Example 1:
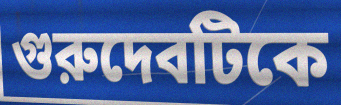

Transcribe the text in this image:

গুরুদেবটিকে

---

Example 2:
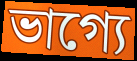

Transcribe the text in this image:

ভাগ্যে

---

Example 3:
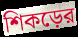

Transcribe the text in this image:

শিকড়ের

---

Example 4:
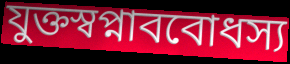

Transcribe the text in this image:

যুক্তস্বপ্নাববোধস্য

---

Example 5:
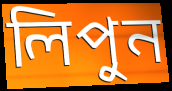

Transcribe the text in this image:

লিপুন